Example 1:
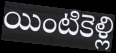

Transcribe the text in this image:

యింటికెళ్లి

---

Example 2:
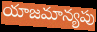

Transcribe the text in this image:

యాజమాన్యపు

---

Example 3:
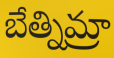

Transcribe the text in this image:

బేత్నిమ్రా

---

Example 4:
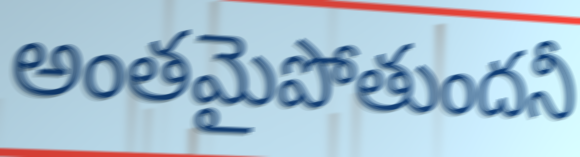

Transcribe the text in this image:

అంతమైపోతుందనీ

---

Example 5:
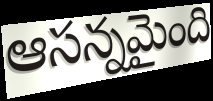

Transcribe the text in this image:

ఆసన్నమైంది